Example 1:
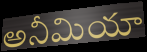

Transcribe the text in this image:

అనీమియా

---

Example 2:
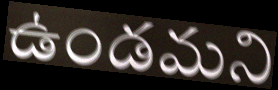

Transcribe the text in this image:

ఉండమని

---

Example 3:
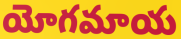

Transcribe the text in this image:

యోగమాయ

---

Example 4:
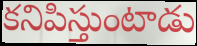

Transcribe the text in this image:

కనిపిస్తుంటాడు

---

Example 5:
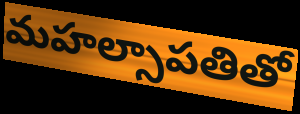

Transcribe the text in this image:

మహల్సాపతితో